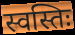
स्वस्तिः